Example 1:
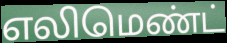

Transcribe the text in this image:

எலிமெண்ட்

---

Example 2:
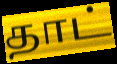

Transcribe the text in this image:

தாட்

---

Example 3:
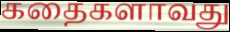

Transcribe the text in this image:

கதைகளாவது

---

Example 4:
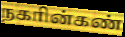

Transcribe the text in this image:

நகரின்கண்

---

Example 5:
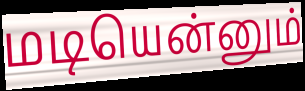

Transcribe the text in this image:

மடியென்னும்